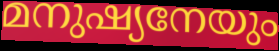
മനുഷ്യനേയും